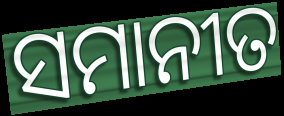
ସମାନୀତ